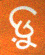
ଡ଼ୁ